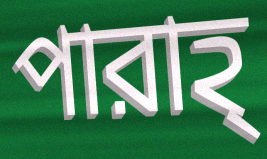
পারাহ্